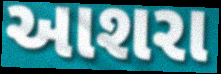
આશરા